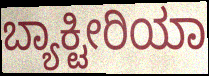
ಬ್ಯಾಕ್ಟೀರಿಯಾ